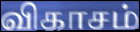
விகாசம்